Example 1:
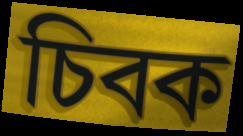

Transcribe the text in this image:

চিবক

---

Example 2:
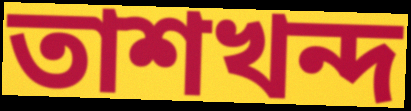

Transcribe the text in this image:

তাশখন্দ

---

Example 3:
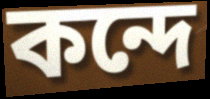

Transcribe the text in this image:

কন্দে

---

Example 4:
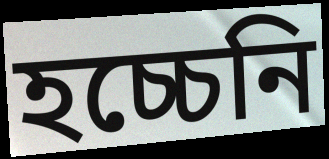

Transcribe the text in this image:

হচ্চেনি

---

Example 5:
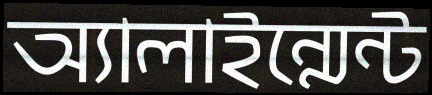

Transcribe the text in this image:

অ্যালাইন্মেন্ট